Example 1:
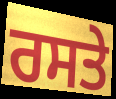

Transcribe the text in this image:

ਰਸਤੇ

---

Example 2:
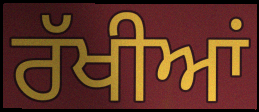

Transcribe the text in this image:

ਰੱਖੀਆਂ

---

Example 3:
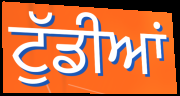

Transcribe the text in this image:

ਟੁੱਡੀਆਂ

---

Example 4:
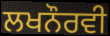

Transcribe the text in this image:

ਲਖਨੌਰਵੀ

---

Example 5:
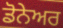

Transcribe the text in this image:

ਡੋਨੇਅਰ